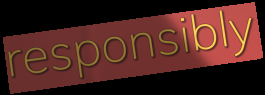
responsibly